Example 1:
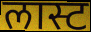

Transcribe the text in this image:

लास्ट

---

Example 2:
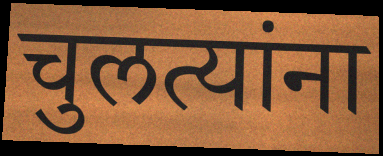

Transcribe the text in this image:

चुलत्यांना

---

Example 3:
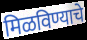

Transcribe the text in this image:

मिळविण्याचे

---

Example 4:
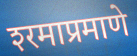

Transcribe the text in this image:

श्रमाप्रमाणे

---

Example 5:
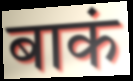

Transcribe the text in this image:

बाकं